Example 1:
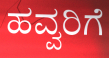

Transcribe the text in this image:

ಹವ್ವರಿಗೆ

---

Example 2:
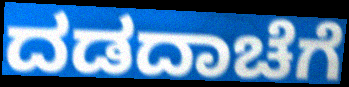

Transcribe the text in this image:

ದಡದಾಚೆಗೆ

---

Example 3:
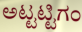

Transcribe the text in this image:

ಅಟ್ಟಟ್ಟಿಗಂ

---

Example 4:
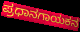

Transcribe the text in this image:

ಪ್ರಧಾನಗಾಯಕನ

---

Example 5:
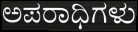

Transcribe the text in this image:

ಅಪರಾಧಿಗಳು